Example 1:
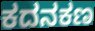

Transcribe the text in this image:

ಕದನಕಣ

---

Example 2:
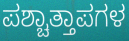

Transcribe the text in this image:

ಪಶ್ಚಾತ್ತಾಪಗಳ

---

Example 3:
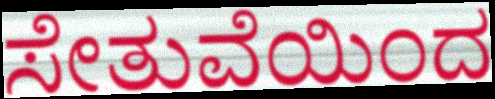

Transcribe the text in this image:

ಸೇತುವೆಯಿಂದ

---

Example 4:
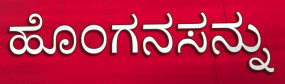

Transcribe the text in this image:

ಹೊಂಗನಸನ್ನು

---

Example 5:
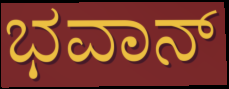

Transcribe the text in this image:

ಭವಾನ್